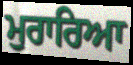
ਮੁਰਾਰਿਆ